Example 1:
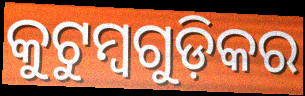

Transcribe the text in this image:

କୁଟୁମ୍ବଗୁଡ଼ିକର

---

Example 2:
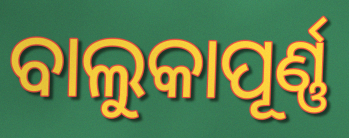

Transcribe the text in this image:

ବାଲୁକାପୂର୍ଣ୍ଣ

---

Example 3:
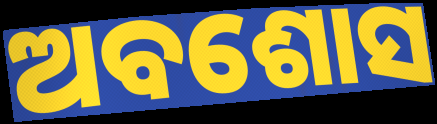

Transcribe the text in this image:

ଅବଶୋସ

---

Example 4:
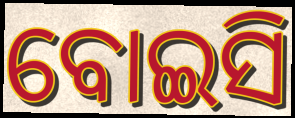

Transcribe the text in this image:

ବୋଇସି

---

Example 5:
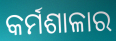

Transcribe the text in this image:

କର୍ମଶାଳାର